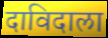
दाविदाला